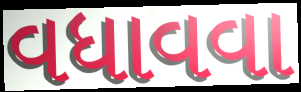
વધાવવા